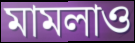
মামলাও